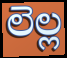
లెల్ల